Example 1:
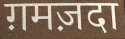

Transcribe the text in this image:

ग़मज़दा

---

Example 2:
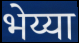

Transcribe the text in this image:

भेय्या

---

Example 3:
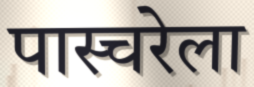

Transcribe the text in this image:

पास्चरेला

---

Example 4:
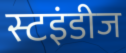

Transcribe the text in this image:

स्टइंडीज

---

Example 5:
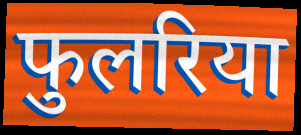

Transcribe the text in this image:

फुलरिया